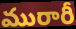
మురారీ